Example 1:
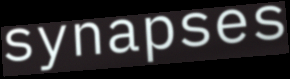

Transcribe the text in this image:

synapses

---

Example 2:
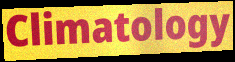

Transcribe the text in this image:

Climatology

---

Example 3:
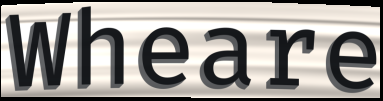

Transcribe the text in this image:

Wheare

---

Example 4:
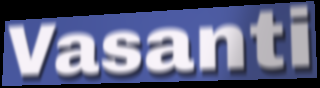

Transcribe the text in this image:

Vasanti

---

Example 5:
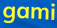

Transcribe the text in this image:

gami